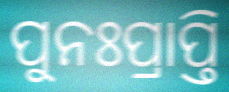
ପୁନଃପ୍ରାପ୍ତି